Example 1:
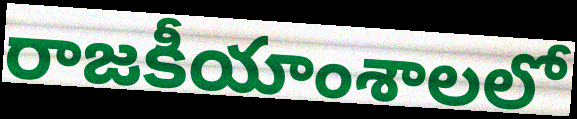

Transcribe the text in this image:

రాజకీయాంశాలలో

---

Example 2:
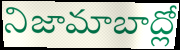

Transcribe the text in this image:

నిజామాబాద్లో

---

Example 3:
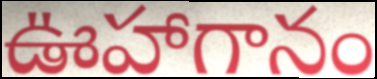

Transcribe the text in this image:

ఊహాగానం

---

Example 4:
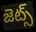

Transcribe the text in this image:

జెట్స్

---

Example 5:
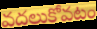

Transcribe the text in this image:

వదలుకోవటం